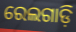
ରେଲଗାଡ଼ି